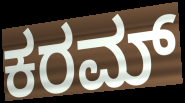
ಕರಮ್